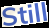
Still